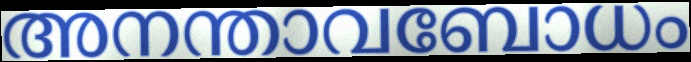
അനന്താവബോധം